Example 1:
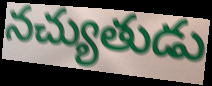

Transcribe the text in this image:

నచ్యుతుడు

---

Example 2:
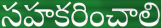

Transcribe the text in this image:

సహకరించాలి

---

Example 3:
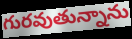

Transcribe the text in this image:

గురవుతున్నాను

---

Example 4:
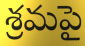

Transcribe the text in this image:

శ్రమపై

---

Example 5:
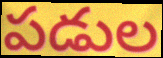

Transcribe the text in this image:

పడుల